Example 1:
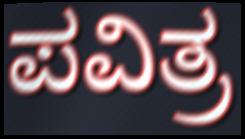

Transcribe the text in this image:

ಪವಿತ್ರ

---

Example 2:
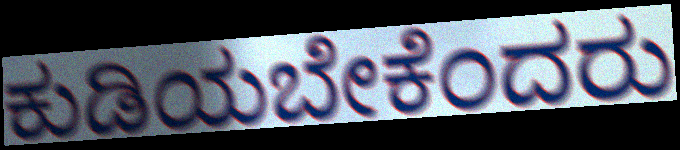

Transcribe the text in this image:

ಕುಡಿಯಬೇಕೆಂದರು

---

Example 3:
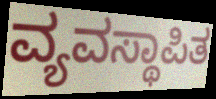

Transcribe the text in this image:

ವ್ಯವಸ್ಥಾಪಿತ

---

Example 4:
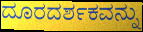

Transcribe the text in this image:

ದೂರದರ್ಶಕವನ್ನು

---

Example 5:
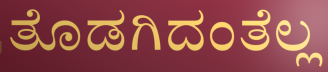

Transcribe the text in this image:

ತೊಡಗಿದಂತೆಲ್ಲ